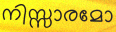
നിസ്സാരമോ